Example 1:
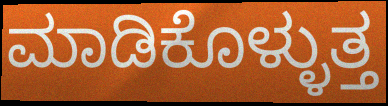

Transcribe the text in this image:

ಮಾಡಿಕೊಳ್ಳುತ್ತ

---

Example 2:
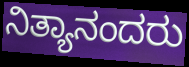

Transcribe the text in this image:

ನಿತ್ಯಾನಂದರು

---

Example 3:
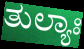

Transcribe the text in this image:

ತುಲ್ಯಾಃ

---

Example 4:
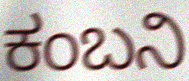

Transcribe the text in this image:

ಕಂಬನಿ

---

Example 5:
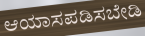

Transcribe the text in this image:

ಆಯಾಸಪಡಿಸಬೇಡಿ